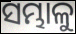
ସମ୍ଭାଳୁ